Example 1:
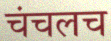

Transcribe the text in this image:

चंचलच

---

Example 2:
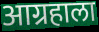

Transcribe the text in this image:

आग्रहाला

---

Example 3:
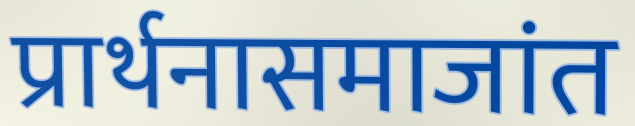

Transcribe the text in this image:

प्रार्थनासमाजांत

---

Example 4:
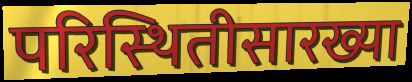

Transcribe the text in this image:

परिस्थितीसारख्या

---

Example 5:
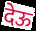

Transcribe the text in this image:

देऊ